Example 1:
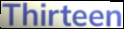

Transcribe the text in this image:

Thirteen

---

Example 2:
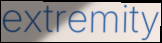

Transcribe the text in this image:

extremity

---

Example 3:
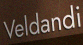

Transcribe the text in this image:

Veldandi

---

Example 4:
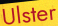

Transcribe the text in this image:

Ulster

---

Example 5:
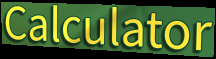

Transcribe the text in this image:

Calculator